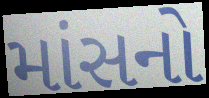
માંસનો